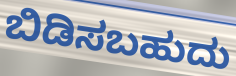
ಬಿಡಿಸಬಹುದು